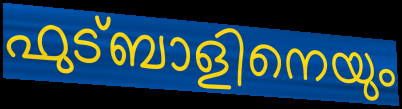
ഫുട്ബാളിനെയും